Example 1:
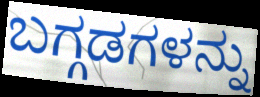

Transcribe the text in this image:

ಬಗ್ಗಡಗಳನ್ನು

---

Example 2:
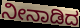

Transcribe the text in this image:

ನೀನಾಡಿದ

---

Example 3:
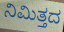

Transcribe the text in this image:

ನಿಮಿತ್ತದ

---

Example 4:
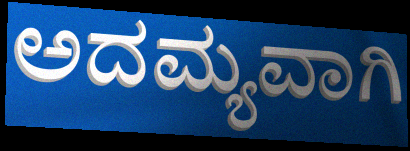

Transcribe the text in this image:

ಅದಮ್ಯವಾಗಿ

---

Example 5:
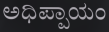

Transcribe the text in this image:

ಅಧಿಪ್ಪಾಯಂ